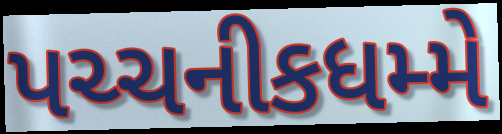
પચ્ચનીકધમ્મે